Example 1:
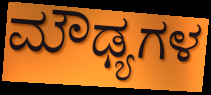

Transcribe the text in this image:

ಮೌಢ್ಯಗಳ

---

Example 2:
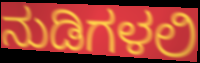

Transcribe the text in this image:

ನುಡಿಗಳಲಿ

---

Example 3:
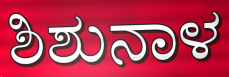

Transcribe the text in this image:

ಶಿಶುನಾಳ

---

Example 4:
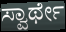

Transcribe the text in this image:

ಸ್ವಾರ್ಥೇ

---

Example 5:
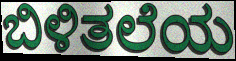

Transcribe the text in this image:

ಬಿಳಿತಲೆಯ